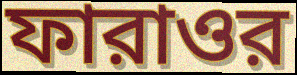
ফারাওর